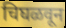
चिघळवून